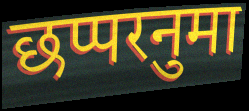
छप्परनुमा